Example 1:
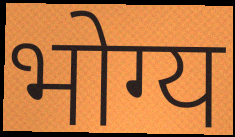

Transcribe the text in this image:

भोग्य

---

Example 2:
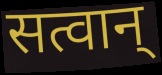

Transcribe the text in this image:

सत्वान्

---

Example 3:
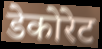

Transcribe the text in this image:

डेकोरेट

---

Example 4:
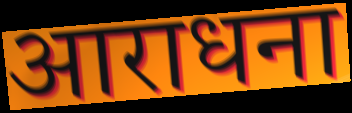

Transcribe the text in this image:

आराधना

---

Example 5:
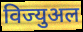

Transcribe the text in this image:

विज्युअल